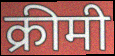
क्रीमी